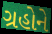
ગ્રહોને